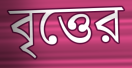
বৃত্তের